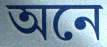
অনে